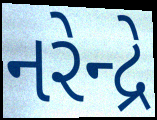
નરેન્દ્રે